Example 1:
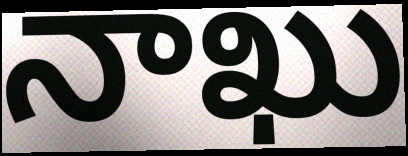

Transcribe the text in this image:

నాఖు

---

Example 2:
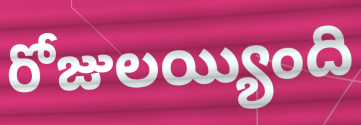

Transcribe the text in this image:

రోజులయ్యింది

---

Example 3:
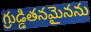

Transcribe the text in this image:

గ్రుడ్డితనమైనను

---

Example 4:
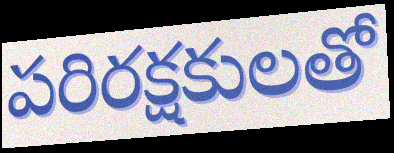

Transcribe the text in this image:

పరిరక్షకులతో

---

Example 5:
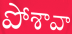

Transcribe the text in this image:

పోశావా